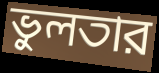
ভুলতার